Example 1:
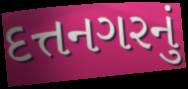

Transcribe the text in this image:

દત્તનગરનું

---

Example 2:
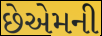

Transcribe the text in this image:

છેએમની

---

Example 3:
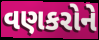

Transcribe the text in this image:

વણકરોને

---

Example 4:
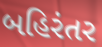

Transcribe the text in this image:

બહિરંતર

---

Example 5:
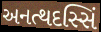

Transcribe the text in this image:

અનત્થદસ્સિં